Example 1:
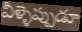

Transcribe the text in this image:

వీళ్ళెప్పుడూ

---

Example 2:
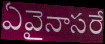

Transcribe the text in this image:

ఏవైనాసరే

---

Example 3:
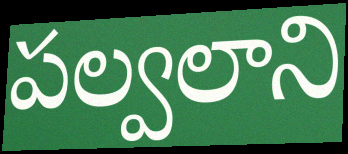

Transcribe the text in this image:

పల్వలాని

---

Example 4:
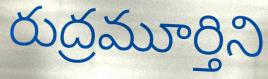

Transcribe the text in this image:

రుద్రమూర్తిని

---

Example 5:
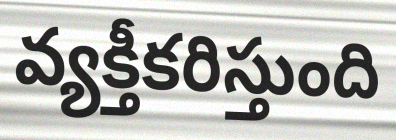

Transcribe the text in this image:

వ్యక్తీకరిస్తుంది